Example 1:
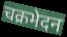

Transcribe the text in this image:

चक्रभेदन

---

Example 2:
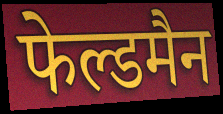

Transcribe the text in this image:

फेल्डमैन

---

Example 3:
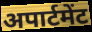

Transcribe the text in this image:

अपार्टमेंट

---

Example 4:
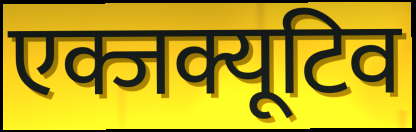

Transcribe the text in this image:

एक्जक्यूटिव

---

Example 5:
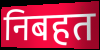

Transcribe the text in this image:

निबहत